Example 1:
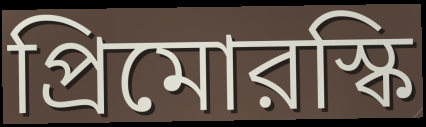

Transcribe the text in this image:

প্রিমোরস্কি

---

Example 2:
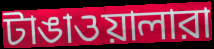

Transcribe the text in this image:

টাঙাওয়ালারা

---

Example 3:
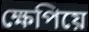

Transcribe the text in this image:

ক্ষেপিয়ে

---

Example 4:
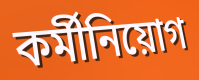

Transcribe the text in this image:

কর্মীনিয়োগ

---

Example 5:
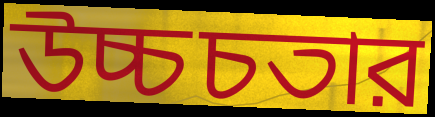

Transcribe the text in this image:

উচ্চচতার